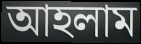
আহলাম